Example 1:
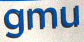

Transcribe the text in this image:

gmu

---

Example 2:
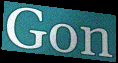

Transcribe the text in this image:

Gon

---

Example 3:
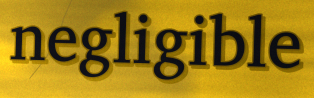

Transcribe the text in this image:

negligible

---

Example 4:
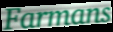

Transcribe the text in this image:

Farmans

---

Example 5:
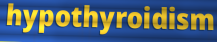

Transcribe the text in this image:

hypothyroidism